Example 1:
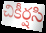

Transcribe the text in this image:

చికీర్షసి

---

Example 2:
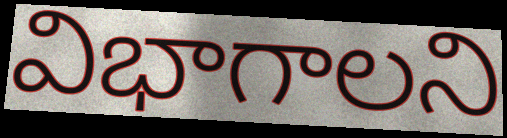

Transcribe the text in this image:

విభాగాలని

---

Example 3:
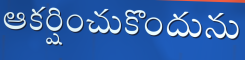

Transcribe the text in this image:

ఆకర్షించుకొందును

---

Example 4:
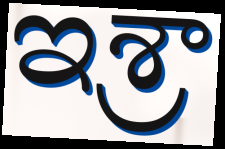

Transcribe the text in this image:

ఇశ్రా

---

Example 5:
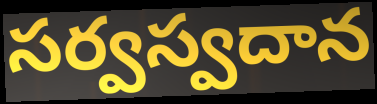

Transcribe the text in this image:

సర్వస్వదాన